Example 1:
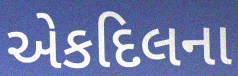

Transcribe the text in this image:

એકદિલના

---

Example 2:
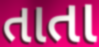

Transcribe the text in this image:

તાતા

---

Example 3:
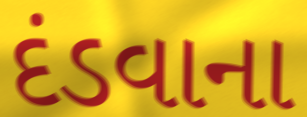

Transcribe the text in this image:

દંડવાના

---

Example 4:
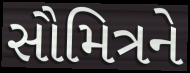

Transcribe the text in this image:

સૌમિત્રને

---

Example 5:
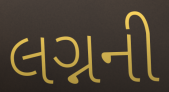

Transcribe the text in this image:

લગ્નની